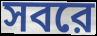
সবরে